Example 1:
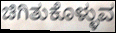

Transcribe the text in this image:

ಚಿಗಿತುಕೊಳ್ಳುವ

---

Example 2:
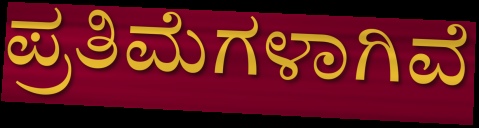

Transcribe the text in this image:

ಪ್ರತಿಮೆಗಳಾಗಿವೆ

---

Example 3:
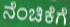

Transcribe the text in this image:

ನೆಂಚಿಕೆಗೆ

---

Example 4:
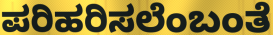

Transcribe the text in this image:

ಪರಿಹರಿಸಲೆಂಬಂತೆ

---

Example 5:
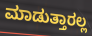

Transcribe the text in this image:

ಮಾಡುತ್ತಾರಲ್ಲ